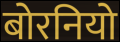
बोरनियो